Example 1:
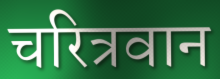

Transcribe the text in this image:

चरित्रवान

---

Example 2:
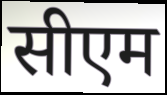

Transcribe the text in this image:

सीएम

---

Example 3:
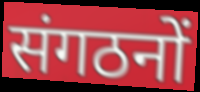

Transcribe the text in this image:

संगठनों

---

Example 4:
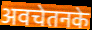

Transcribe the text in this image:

अवचेतनके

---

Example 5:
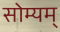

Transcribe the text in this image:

सोम्यम्